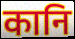
कानि